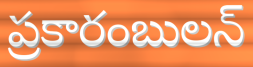
ప్రకారంబులన్